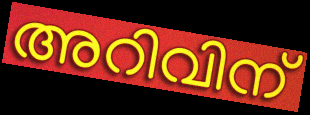
അറിവിന്